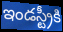
ఇండస్ట్రీకి